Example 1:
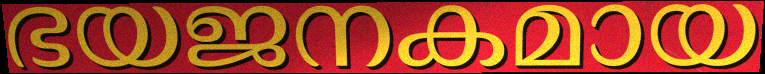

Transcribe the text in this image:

ഭയജനകമായ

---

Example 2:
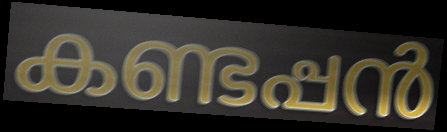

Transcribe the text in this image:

കണ്ടപ്പൻ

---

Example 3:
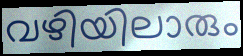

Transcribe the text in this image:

വഴിയിലാരും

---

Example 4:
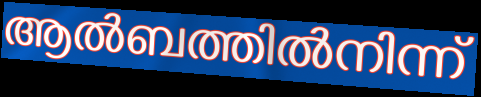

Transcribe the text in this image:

ആൽബത്തിൽനിന്ന്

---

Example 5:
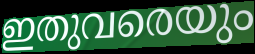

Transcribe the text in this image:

ഇതുവരെയും